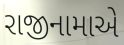
રાજીનામાએ